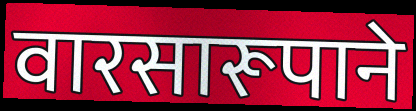
वारसारूपाने